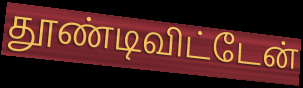
தூண்டிவிட்டேன்